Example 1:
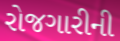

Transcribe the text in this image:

રોજગારીની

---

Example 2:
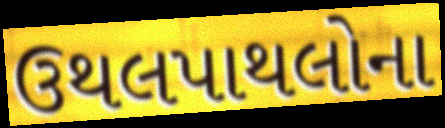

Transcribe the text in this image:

ઉથલપાથલોના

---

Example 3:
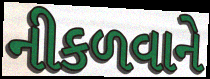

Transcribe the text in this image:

નીકળવાને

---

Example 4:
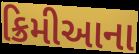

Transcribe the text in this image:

ક્રિમીઆના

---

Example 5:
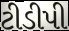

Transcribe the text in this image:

ટીડીપી